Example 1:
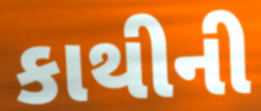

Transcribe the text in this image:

કાથીની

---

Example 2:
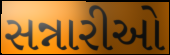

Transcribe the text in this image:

સન્નારીઓ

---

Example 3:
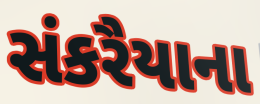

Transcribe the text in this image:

સંકરૈયાના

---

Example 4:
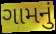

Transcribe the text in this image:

ગામનું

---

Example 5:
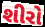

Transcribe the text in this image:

શીરો